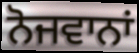
ਨੋਜਵਾਨਾਂ